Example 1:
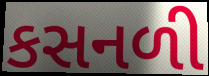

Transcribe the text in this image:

કસનળી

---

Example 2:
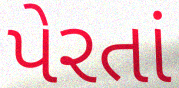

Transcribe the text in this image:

પેરતાં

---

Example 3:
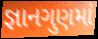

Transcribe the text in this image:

જ્ઞાનગુણમાં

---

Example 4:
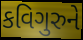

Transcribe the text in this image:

કવિગુરુને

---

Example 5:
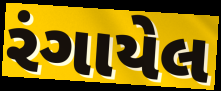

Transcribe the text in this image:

રંગાયેલ